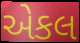
એકલ